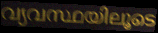
വ്യവസ്ഥയിലൂടെ